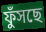
ফুঁসছে